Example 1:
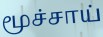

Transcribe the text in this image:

மூச்சாய்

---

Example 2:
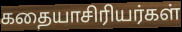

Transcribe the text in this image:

கதையாசிரியர்கள்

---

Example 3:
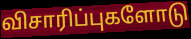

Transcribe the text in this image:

விசாரிப்புகளோடு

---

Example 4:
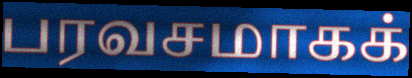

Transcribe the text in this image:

பரவசமாகக்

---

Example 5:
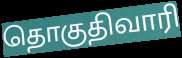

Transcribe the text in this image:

தொகுதிவாரி